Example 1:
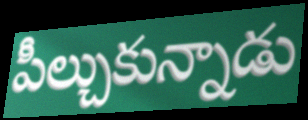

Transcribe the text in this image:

పీల్చుకున్నాడు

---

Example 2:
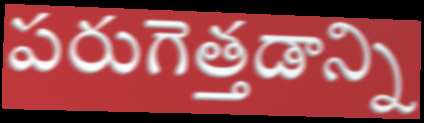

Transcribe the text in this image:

పరుగెత్తడాన్ని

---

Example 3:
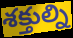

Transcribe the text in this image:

శక్తుల్ని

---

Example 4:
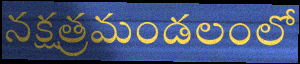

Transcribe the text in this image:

నక్షత్రమండలంలో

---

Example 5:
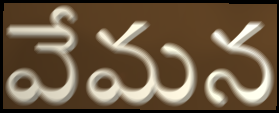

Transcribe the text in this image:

వేమన